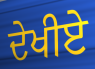
ਦੇਖੀਏ